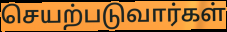
செயற்படுவார்கள்